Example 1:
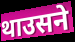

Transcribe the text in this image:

थाउसने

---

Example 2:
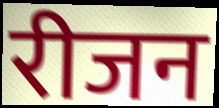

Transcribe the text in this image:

रीजन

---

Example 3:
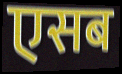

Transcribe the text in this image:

एसब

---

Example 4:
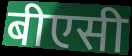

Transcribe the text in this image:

बीएसी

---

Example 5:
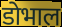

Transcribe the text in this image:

डोभाल